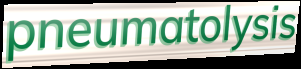
pneumatolysis